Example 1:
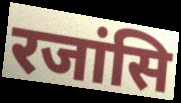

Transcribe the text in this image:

रजांसि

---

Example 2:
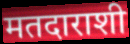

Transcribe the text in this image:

मतदाराशी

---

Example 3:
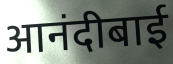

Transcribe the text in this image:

आनंदीबाई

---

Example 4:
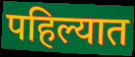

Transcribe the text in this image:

पहिल्यात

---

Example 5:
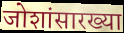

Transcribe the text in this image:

जोशांसारख्या